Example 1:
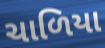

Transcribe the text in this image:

ચાળિયા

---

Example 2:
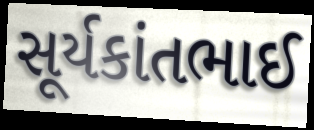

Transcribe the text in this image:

સૂર્યકાંતભાઈ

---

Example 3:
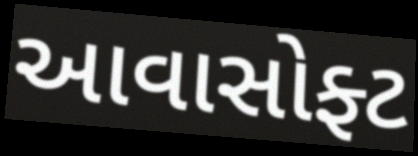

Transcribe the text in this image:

આવાસોફ્ટ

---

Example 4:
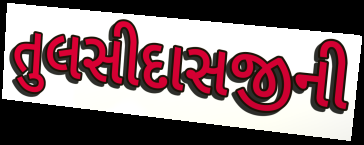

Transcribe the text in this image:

તુલસીદાસજીની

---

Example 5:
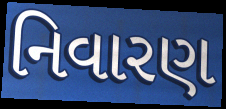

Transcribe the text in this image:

નિવારણ